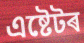
এষ্টেটৰ